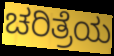
ಚರಿತ್ರೆಯ